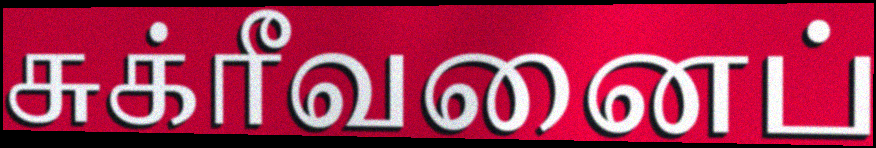
சுக்ரீவனைப்